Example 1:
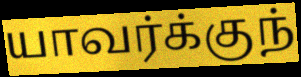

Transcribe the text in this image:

யாவர்க்குந்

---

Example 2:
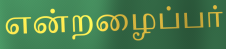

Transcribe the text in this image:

என்றழைப்பர்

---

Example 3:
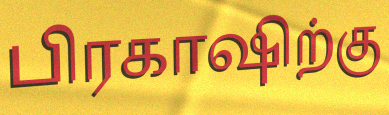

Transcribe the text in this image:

பிரகாஷிற்கு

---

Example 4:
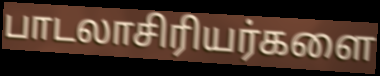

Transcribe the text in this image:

பாடலாசிரியர்களை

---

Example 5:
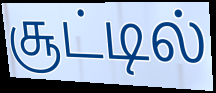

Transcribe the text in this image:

சூட்டில்